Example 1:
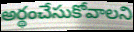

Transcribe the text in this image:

అర్థంచేసుకోవాలని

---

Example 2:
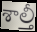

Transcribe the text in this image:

శాల్తీ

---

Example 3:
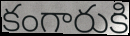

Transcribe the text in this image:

కంగారుకి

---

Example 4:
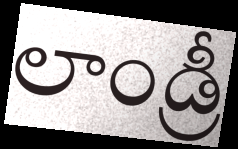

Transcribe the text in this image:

లాండ్రీ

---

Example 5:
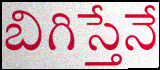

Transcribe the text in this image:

బిగిస్తేనే